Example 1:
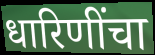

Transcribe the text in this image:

धारिणींचा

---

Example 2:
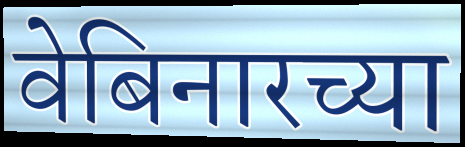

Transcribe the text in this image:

वेबिनारच्या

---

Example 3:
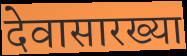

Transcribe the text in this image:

देवासारख्या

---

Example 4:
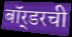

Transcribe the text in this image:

बॉर्डरची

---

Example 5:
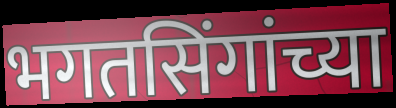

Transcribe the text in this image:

भगतसिंगांच्या